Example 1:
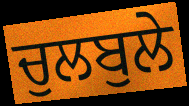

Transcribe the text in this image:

ਚੁਲਬੁਲੇ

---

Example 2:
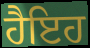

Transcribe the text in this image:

ਹੈਇਹ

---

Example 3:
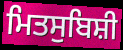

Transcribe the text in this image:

ਮਿਤਸੁਬਿਸ਼ੀ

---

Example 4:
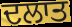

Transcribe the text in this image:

ਦਲਾਤ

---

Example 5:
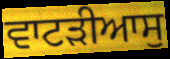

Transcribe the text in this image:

ਵਾਟੜੀਆਸੁ